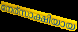
നേര്സാക്ഷിയായ